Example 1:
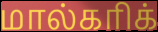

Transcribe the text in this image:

மால்கரிக்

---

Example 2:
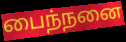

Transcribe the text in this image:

பைந்நனை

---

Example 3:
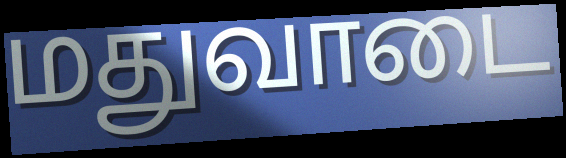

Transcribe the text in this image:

மதுவாடை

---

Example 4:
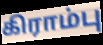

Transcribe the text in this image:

கிராம்பு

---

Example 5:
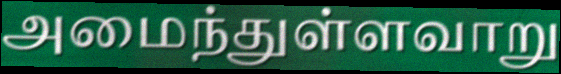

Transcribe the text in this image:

அமைந்துள்ளவாறு